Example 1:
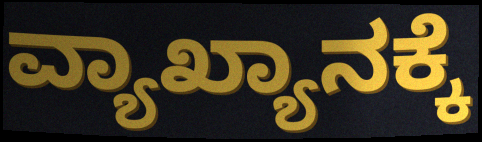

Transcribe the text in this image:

ವ್ಯಾಖ್ಯಾನಕ್ಕೆ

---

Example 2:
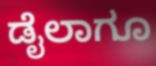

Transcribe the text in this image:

ಡೈಲಾಗೂ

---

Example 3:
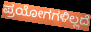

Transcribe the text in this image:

ಪ್ರಯೋಗಗಳಿಲ್ಲದೆ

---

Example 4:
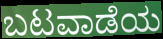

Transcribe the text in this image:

ಬಟವಾಡೆಯ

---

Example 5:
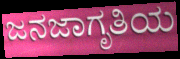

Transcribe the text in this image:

ಜನಜಾಗೃತಿಯ